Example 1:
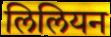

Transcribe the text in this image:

लिलियन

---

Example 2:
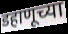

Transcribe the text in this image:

डहाणूच्या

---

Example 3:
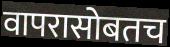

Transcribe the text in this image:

वापरासोबतच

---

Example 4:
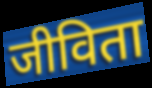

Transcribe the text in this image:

जीविता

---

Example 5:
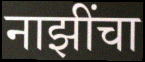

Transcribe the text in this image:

नाझींचा